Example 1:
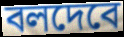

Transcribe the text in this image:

বলদেবে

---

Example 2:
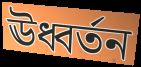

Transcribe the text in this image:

ঊধ্বর্তন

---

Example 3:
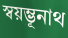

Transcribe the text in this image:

স্বয়ম্ভূনাথ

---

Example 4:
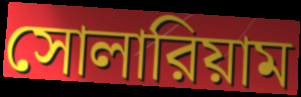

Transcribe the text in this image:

সোলারিয়াম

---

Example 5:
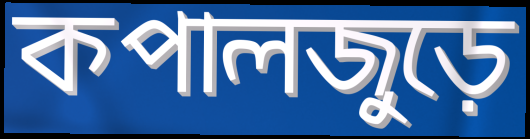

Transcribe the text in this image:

কপালজুড়ে